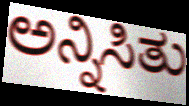
ಅನ್ನಿಸಿತು